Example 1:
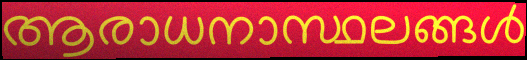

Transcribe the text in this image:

ആരാധനാസ്ഥലങ്ങൾ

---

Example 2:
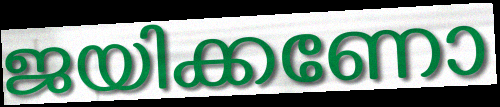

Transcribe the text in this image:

ജയിക്കണോ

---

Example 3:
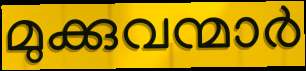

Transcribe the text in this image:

മുക്കുവന്മാർ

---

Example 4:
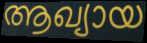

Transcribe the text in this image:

ആഖ്യായ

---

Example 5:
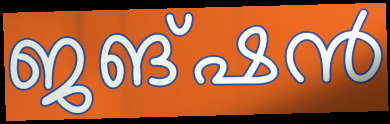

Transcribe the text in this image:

ജങ്ഷൻ